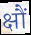
क्षौं